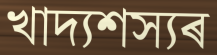
খাদ্যশস্যৰ